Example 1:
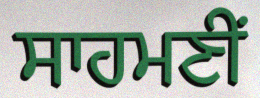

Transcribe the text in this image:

ਸਾਹਮਣੀਂ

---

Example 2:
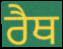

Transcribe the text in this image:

ਰੈਥ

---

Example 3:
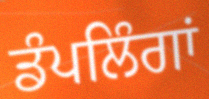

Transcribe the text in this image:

ਡੰਪਲਿੰਗਾਂ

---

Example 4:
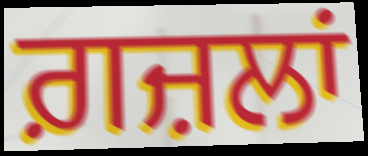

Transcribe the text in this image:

ਗ਼ਜ਼ਲਾਂ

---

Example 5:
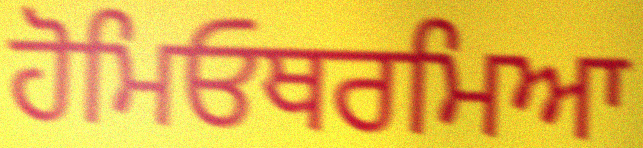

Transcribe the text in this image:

ਹੋਮਿਓਥਰਮਿਆ